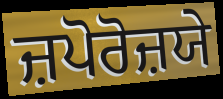
ਜ਼ਪੋਰੋਜ਼ਯੇ